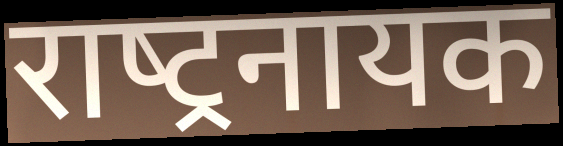
राष्ट्रनायक